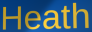
Heath